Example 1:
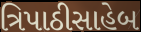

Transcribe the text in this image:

ત્રિપાઠીસાહેબ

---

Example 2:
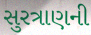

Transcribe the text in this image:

સુરત્રાણની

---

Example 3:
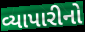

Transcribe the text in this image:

વ્યાપારીનો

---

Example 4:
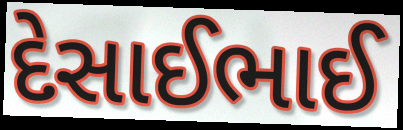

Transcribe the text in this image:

દેસાઈભાઈ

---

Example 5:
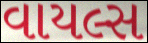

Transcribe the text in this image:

વાયલ્સ